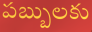
పబ్బులకు